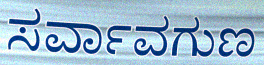
ಸರ್ವಾವಗುಣ